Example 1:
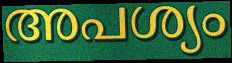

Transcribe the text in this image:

അപശ്യം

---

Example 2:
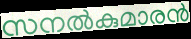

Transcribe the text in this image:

സനൽകുമാരൻ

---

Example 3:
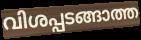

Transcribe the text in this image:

വിശപ്പടങ്ങാത്ത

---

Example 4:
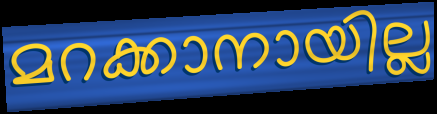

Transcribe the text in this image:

മറക്കാനായില്ല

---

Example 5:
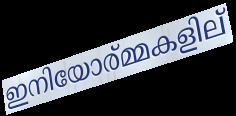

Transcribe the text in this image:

ഇനിയോര്മ്മകളില്